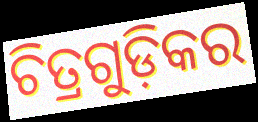
ଚିତ୍ରଗୁଡ଼ିକର